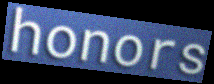
honors